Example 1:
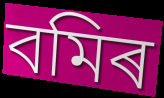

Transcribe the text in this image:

বমিৰ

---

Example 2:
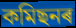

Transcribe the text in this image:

কমিছনৰ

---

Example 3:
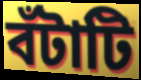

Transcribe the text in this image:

বঁটাটি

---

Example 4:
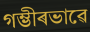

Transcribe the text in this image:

গম্ভীৰভাৱে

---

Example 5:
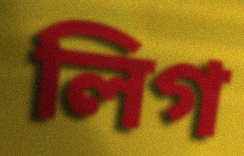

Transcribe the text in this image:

লিগ